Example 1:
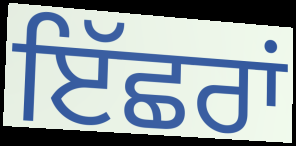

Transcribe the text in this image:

ਇੱਛਰਾਂ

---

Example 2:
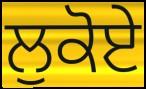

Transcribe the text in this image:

ਲੁਕੋਏ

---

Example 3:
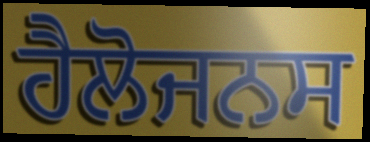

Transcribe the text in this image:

ਹੈਲੋਜਨਸ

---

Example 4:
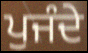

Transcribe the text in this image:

ਪੁਜੰਦੇ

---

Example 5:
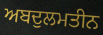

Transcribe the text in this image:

ਅਬਦੁਲਮਤੀਨ